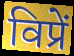
विप्रें